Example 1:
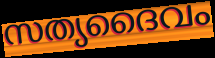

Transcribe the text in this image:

സത്യദൈവം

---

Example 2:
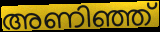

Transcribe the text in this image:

അണിഞ്ഞ്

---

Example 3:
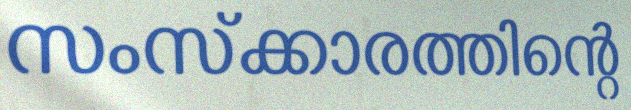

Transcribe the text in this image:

സംസ്‌ക്കാരത്തിന്റെ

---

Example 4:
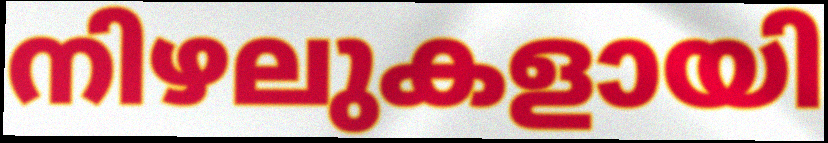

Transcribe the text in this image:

നിഴലുകളായി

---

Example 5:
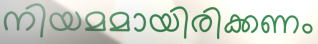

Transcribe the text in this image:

നിയമമായിരിക്കണം